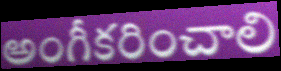
అంగీకరించాలి